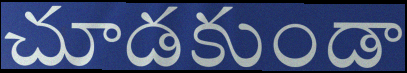
చూడకుండా